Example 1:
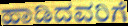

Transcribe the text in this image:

ಹಾಡಿದವರಿಗೆ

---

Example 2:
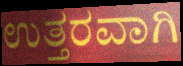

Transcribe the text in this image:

ಉತ್ತರವಾಗಿ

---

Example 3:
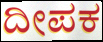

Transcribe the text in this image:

ದೀಪಕ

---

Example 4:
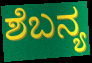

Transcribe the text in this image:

ಶೆಬನ್ಯ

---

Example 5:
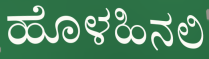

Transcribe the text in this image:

ಹೊಳಹಿನಲಿ